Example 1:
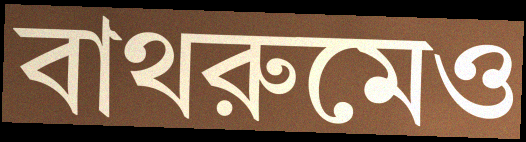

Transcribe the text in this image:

বাথরুমেও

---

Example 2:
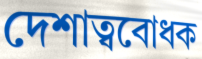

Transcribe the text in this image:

দেশাত্ববোধক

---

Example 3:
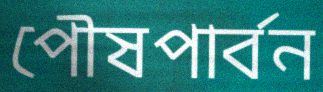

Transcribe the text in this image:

পৌষপার্বন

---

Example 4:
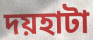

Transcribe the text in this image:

দয়হাটা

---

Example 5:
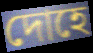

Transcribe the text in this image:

দোহে